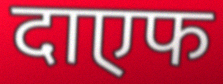
दाएफ